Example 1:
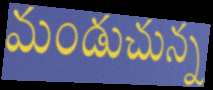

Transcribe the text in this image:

మండుచున్న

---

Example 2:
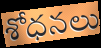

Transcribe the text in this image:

శోధనలు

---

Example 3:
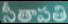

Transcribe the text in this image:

సీతాపతి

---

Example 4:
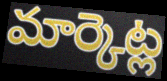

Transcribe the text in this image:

మార్కెట్ల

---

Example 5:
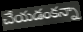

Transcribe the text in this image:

చేయడంకన్నా